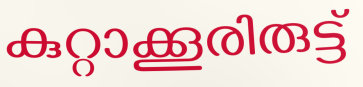
കുറ്റാക്കൂരിരുട്ട്